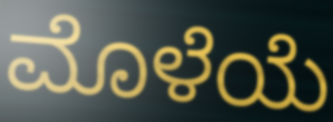
ಮೊಳೆಯೆ